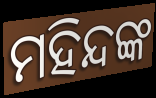
ମହିନ୍ଦଙ୍କ